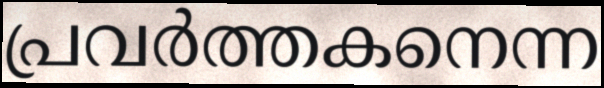
പ്രവർത്തകനെന്ന